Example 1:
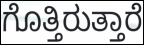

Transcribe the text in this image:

ಗೊತ್ತಿರುತ್ತಾರೆ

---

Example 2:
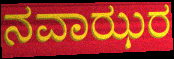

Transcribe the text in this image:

ನವಾಝರ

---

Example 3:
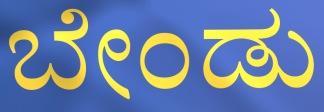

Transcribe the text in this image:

ಬೇಂಡು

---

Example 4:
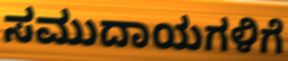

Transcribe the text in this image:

ಸಮುದಾಯಗಳಿಗೆ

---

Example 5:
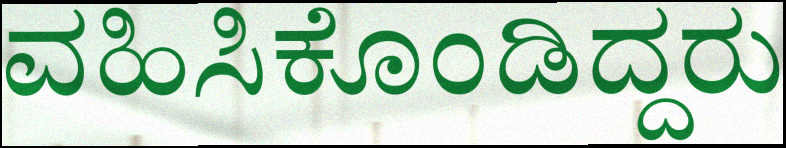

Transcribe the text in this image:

ವಹಿಸಿಕೊಂಡಿದ್ದರು